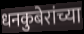
धनकुबेरांच्या